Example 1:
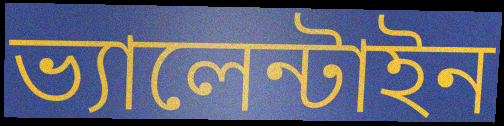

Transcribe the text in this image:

ভ্যালেন্টাইন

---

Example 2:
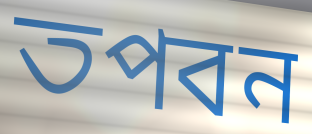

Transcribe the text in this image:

তপবন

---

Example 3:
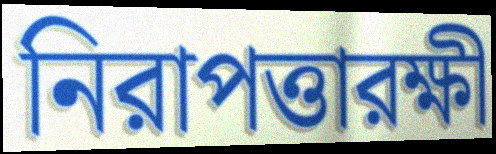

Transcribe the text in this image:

নিরাপত্তারক্ষী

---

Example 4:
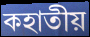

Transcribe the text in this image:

কহাতীয়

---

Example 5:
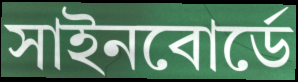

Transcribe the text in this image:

সাইনবোর্ডে